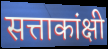
सत्ताकांक्षी